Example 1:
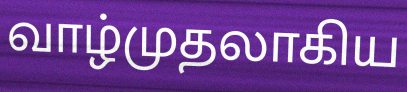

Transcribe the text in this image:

வாழ்முதலாகிய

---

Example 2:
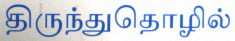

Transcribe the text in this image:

திருந்துதொழில்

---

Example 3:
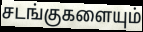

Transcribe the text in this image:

சடங்குகளையும்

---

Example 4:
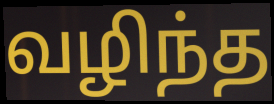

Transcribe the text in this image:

வழிந்த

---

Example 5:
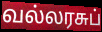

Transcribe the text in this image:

வல்லரசுப்